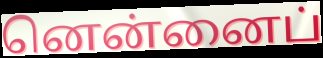
னென்னைப்